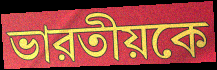
ভারতীয়কে